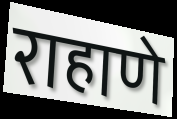
राहाणे